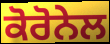
ਕੋਰੋਨੇਲ